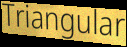
Triangular